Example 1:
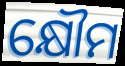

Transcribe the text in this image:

କ୍ଷୌମ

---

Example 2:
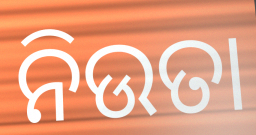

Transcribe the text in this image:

ନିଉତା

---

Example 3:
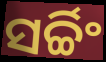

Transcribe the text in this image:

ସର୍ଚ୍ଚିଂ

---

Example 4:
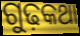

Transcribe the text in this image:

ଗୁଢ଼କଥା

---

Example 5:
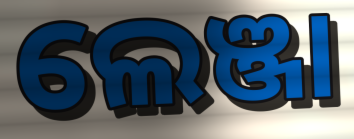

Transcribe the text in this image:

ଲେଞ୍ଜା